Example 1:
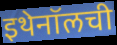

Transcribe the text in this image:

इथेनॉलची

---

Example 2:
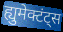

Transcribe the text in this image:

ह्युमेक्टंट्स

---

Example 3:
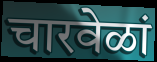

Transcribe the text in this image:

चारवेळां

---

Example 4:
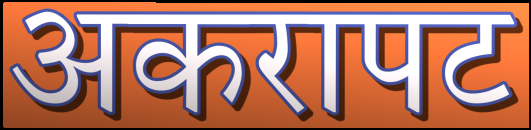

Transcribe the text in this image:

अकरापट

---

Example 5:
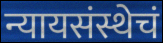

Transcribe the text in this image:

न्यायसंस्थेचं